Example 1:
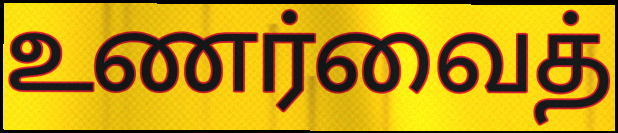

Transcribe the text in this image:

உணர்வைத்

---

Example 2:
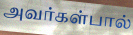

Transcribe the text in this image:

அவர்கள்பால்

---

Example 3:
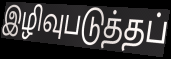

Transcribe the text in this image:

இழிவுபடுத்தப்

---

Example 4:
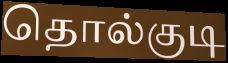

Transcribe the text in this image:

தொல்குடி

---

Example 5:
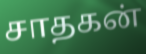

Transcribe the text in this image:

சாதகன்